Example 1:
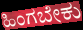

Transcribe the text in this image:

ಹಿಂಗಬೇಕು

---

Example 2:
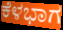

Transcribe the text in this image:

ಕೆಳಭಾಗ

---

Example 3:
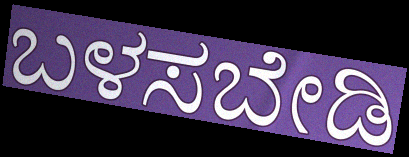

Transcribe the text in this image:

ಬಳಸಬೇಡಿ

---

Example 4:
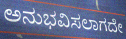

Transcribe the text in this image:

ಅನುಭವಿಸಲಾಗದೇ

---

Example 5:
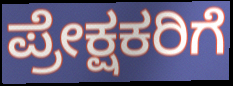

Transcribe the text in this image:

ಪ್ರೇಕ್ಷಕರಿಗೆ